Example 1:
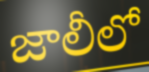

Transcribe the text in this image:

జాలీలో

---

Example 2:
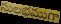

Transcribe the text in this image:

సులభముగా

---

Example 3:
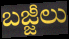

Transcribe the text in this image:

బజ్జీలు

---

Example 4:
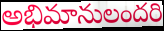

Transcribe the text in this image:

అభిమానులందరి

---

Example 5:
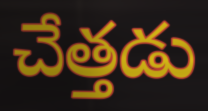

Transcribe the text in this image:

చేత్తడు